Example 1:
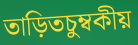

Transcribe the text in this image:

তাড়িতচুম্বকীয়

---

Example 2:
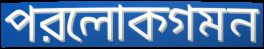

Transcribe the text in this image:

পরলোকগমন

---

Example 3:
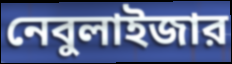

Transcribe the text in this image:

নেবুলাইজার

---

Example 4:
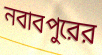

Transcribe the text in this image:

নবাবপুরের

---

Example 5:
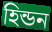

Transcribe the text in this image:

হিন্ডন